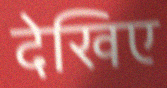
देखिए